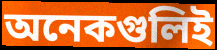
অনেকগুলিই